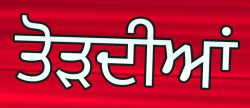
ਤੋੜਦੀਆਂ